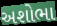
અશોભા